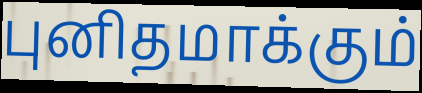
புனிதமாக்கும்